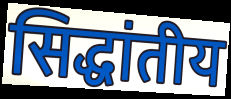
सिद्धांतीय